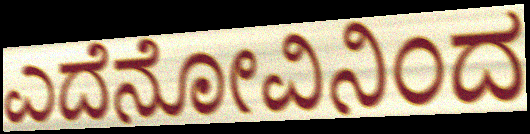
ಎದೆನೋವಿನಿಂದ